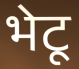
भेटू